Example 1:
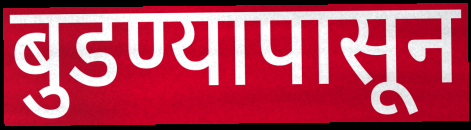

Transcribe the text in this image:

बुडण्यापासून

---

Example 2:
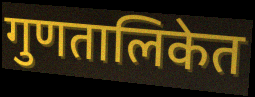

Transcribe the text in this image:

गुणतालिकेत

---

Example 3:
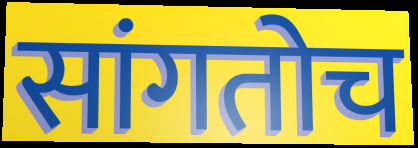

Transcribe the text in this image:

सांगतोच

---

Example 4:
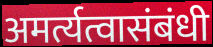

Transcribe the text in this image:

अमर्त्यत्वासंबंधी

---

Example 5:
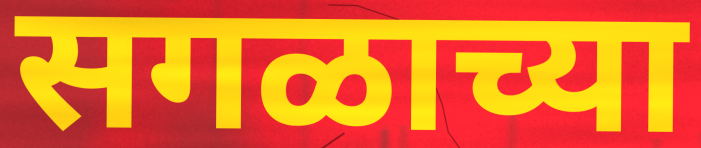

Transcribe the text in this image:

सगळाच्या